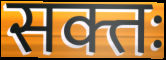
सक्तः